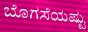
ಬೊಗಸೆಯಷ್ಟು